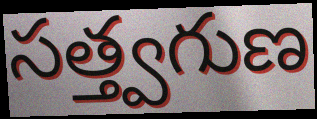
సత్త్వగుణ